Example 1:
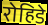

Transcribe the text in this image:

रोहिडे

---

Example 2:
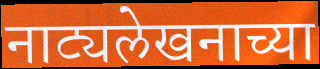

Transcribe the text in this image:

नाट्यलेखनाच्या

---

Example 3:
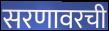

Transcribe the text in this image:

सरणावरची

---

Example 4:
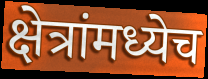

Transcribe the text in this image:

क्षेत्रांमध्येच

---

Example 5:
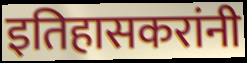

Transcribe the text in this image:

इतिहासकरांनी